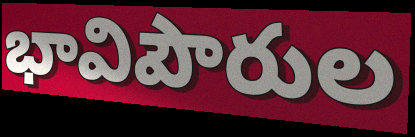
భావిపౌరుల